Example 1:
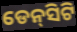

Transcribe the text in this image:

ଡେନ୍‌ସିଟି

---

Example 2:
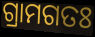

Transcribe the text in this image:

ଗ୍ରାମଗତଃ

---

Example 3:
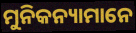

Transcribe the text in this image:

ମୁନିକନ୍ୟାମାନେ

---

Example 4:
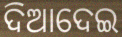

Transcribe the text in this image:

ଦିଆଦେଇ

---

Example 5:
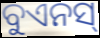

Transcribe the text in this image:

ବୁଏନସ୍